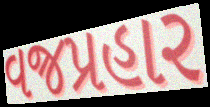
વજ્રપ્રહાર